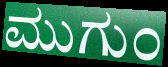
ಮುಗುಂ